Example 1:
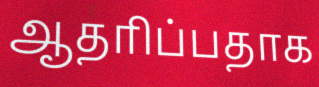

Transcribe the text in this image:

ஆதரிப்பதாக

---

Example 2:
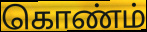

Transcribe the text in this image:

கொண்ம்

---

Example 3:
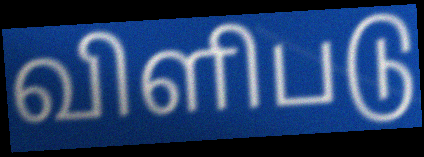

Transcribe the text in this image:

விளிபடு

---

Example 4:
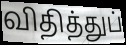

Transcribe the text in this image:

விதித்துப்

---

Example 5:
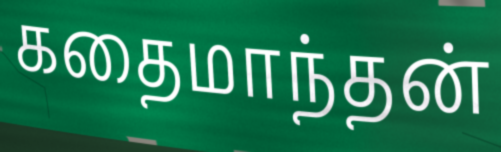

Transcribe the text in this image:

கதைமாந்தன்